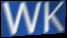
WK